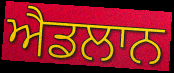
ਐਡਲਾਨ